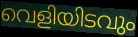
വെളിയിടവും